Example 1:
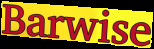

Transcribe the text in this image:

Barwise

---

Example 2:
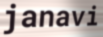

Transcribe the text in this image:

janavi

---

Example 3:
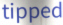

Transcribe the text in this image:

tipped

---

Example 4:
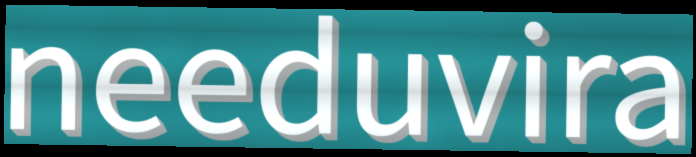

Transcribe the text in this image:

needuvira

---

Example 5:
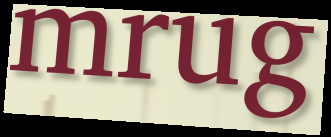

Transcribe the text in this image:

mrug